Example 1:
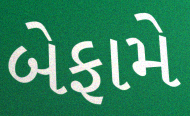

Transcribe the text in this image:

બેફામે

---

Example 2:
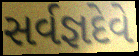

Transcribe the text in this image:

સર્વજ્ઞદેવે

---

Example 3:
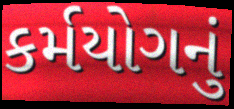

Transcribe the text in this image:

કર્મયોગનું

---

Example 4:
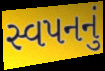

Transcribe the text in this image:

સ્વપનનું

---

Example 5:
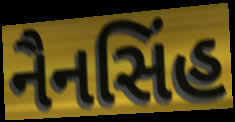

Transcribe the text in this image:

નૈનસિંહ